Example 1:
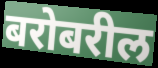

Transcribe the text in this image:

बरोबरील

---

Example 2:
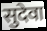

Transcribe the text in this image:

सुदेवा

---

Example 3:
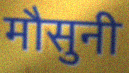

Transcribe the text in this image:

मौसुनी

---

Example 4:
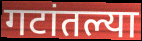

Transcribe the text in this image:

गटांतल्या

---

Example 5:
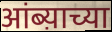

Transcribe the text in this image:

आंब्य़ाच्या